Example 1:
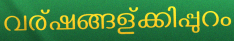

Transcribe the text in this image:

വര്ഷങ്ങള്ക്കിപ്പുറം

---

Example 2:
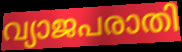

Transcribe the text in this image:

വ്യാജപരാതി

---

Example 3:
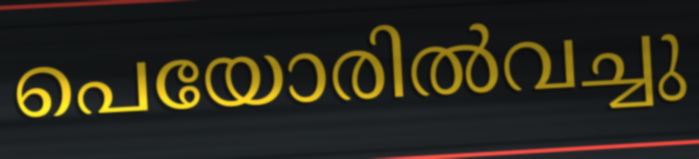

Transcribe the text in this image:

പെയോരിൽവച്ചു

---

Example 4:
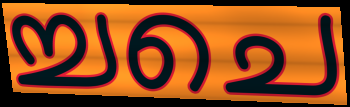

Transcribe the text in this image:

ച്ചചെ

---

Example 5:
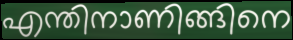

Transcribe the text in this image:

എന്തിനാണിങ്ങിനെ